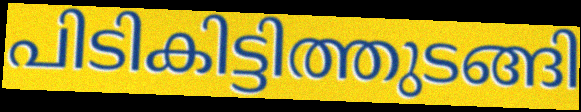
പിടികിട്ടിത്തുടങ്ങി